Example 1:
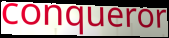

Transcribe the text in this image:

conqueror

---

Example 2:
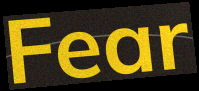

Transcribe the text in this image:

Fear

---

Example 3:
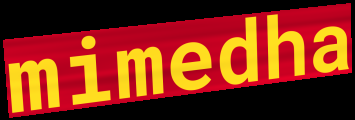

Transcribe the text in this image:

mimedha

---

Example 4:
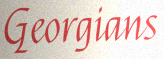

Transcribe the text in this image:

Georgians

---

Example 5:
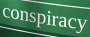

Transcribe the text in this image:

conspiracy